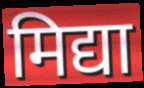
मिद्या